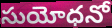
సుయోధనో